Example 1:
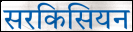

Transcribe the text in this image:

सरकिसियन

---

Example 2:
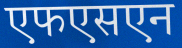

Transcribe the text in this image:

एफएसएन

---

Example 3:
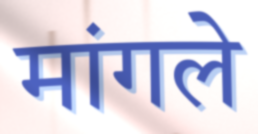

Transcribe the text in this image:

मांगले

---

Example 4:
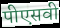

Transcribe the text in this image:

पीएसवी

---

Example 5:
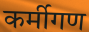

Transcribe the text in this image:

कर्मीगण